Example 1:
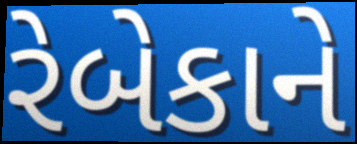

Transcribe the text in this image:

રેબેકાને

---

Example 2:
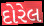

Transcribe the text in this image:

દોરેલ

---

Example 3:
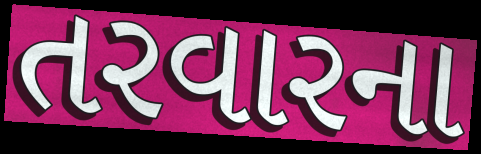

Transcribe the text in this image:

તરવારના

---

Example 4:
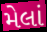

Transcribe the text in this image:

મેલાં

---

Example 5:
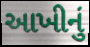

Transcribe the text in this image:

આખીનું